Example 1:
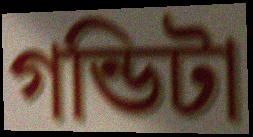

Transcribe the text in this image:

গন্ডিটা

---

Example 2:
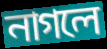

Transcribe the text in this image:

নাগলে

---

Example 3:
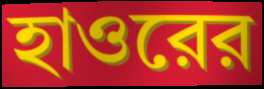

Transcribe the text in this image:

হাওরের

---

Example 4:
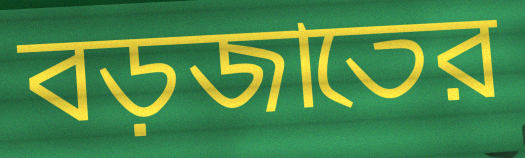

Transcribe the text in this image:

বড়জাতের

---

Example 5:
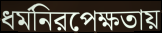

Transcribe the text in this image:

ধর্মনিরপেক্ষতায়